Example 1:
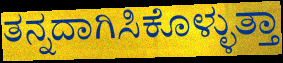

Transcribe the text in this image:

ತನ್ನದಾಗಿಸಿಕೊಳ್ಳುತ್ತಾ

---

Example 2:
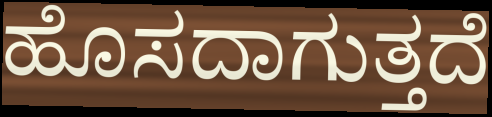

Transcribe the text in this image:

ಹೊಸದಾಗುತ್ತದೆ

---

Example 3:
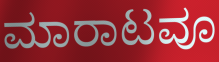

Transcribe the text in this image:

ಮಾರಾಟವೂ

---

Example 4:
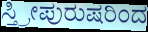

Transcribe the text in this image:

ಸ್ತ್ರೀಪುರುಷರಿಂದ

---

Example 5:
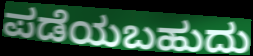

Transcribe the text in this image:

ಪಡೆಯಬಹುದು